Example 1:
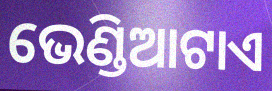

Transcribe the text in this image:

ଭେଣ୍ଡିଆଟାଏ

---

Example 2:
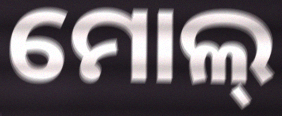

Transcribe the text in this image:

ମୋଲ୍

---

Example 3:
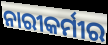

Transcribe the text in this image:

ନାରୀକର୍ମୀର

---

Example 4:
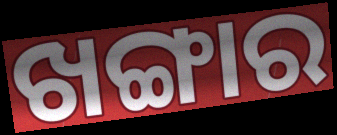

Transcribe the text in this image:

ଖଙ୍ଗାର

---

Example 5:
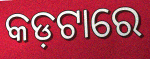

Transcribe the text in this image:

କଡ଼ଟାରେ